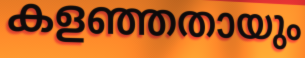
കളഞ്ഞതായും